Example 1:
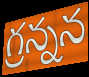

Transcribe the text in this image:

గ్రన్నన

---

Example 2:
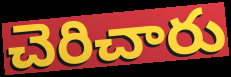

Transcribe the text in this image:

చెరిచారు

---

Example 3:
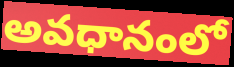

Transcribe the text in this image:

అవధానంలో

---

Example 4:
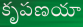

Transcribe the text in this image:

కృపణయా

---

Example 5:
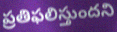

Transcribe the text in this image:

ప్రతిఫలిస్తుందని